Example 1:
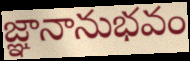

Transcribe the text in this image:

జ్ఞానానుభవం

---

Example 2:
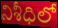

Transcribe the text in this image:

నిశీధిలో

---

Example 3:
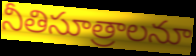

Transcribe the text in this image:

నీతిసూత్రాలనూ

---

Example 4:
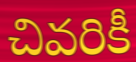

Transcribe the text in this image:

చివరికీ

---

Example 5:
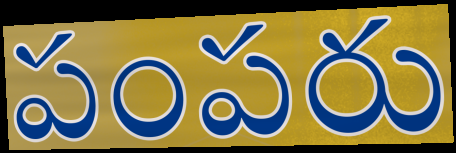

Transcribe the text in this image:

పంపరు